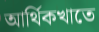
আর্থিকখাতে